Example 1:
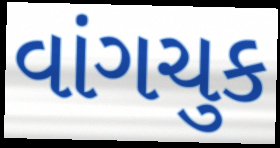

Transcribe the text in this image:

વાંગચુક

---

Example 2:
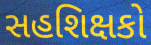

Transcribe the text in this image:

સહશિક્ષકો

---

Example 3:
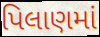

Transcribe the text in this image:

પિલાણમાં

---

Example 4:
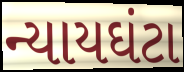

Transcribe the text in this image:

ન્યાયઘંટા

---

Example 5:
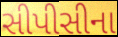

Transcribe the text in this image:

સીપીસીના